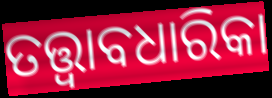
ତତ୍ତ୍ୱାବଧାରିକା